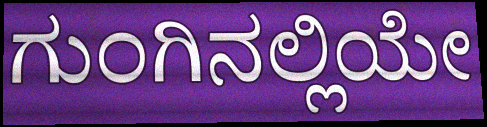
ಗುಂಗಿನಲ್ಲಿಯೇ